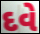
દવે